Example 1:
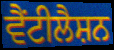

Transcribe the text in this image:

ਵੈਂਟੀਲੈਸ਼ਨ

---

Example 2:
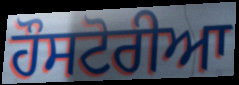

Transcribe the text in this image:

ਹੌਸਟੋਰੀਆ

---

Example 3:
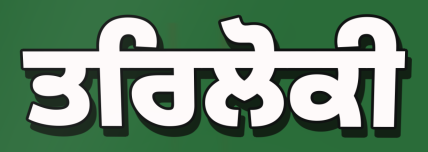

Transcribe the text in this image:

ਤਰਿਲੋਕੀ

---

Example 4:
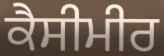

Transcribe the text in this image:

ਕੈਸੀਮੀਰ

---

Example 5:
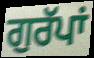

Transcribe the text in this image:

ਗੁਰੱਪਾਂ